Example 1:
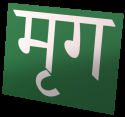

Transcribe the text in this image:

मृग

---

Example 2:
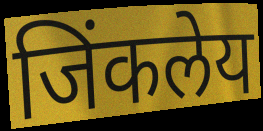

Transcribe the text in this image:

जिंकलेय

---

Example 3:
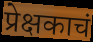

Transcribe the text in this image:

प्रेक्षकाचं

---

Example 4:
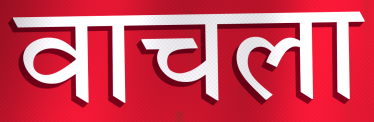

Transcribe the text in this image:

वाचला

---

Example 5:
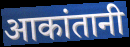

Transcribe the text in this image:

आकांतानी